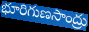
భూరిగుణసాంద్రు